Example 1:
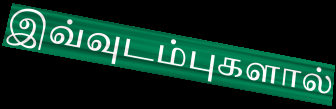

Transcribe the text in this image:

இவ்வுடம்புகளால்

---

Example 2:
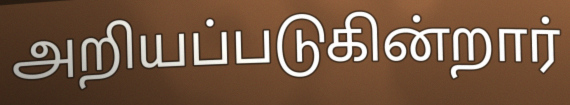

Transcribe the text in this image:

அறியப்படுகின்றார்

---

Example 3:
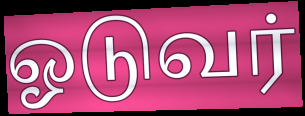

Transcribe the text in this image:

ஓடுவர்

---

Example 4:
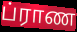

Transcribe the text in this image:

ப்ராண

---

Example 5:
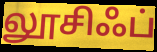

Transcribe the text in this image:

லூசிஃப்